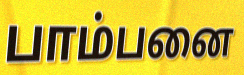
பாம்பனை